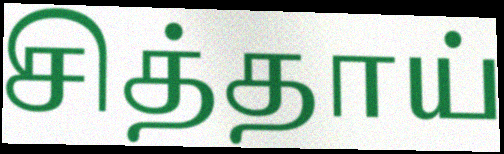
சித்தாய்